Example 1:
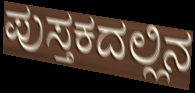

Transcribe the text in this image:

ಪುಸ್ತಕದಲ್ಲಿನ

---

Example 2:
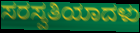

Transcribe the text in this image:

ಸರಸ್ವತಿಯಾದಳು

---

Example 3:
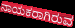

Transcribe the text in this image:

ನಾಯಕರಾಗಿರುವ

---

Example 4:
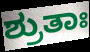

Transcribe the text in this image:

ಶ್ರುತಾಃ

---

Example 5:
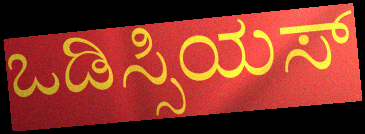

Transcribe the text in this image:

ಒಡಿಸ್ಸಿಯಸ್